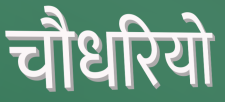
चौधरियो